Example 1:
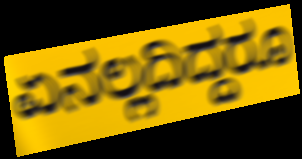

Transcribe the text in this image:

ಏನಲ್ಲದಿದ್ದರೂ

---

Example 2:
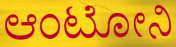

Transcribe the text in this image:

ಆಂಟೋನಿ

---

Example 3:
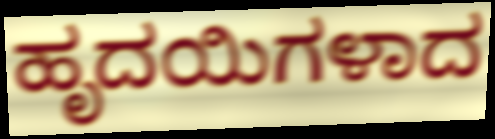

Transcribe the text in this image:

ಹೃದಯಿಗಳಾದ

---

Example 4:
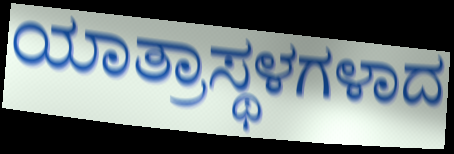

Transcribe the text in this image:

ಯಾತ್ರಾಸ್ಥಳಗಳಾದ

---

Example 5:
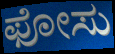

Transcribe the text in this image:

ಫೋಸು